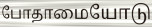
போதாமையோடு